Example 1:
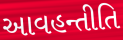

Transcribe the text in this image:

આવહન્તીતિ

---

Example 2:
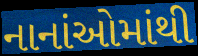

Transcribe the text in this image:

નાનાંઓમાંથી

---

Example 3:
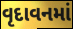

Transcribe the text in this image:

વૃદાવનમાં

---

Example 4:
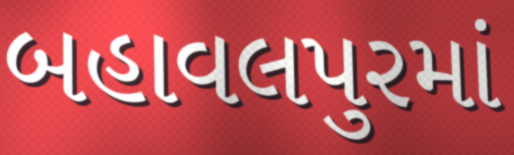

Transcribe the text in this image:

બહાવલપુરમાં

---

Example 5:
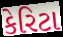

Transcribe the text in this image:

કેરિટા